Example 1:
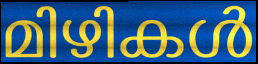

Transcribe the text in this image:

മിഴികൾ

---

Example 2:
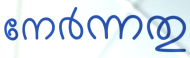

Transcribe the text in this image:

നേർന്നതു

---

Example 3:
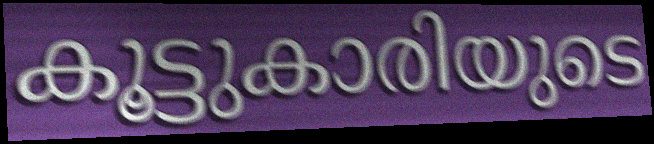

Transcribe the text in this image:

കൂട്ടുകാരിയുടെ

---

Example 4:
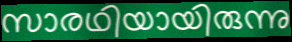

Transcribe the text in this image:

സാരഥിയായിരുന്നു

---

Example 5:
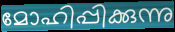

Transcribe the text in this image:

മോഹിപ്പിക്കുന്നു